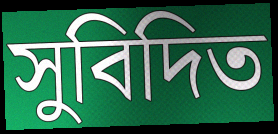
সুবিদিত